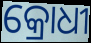
କ୍ରୋଧୀ